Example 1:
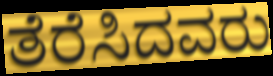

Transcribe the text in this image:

ತೆರೆಸಿದವರು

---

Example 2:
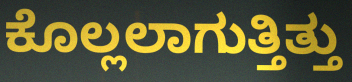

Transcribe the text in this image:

ಕೊಲ್ಲಲಾಗುತ್ತಿತ್ತು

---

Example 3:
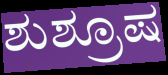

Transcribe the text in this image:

ಶುಶ್ರೂಷ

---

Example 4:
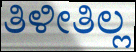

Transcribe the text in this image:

ತಿಳೀತಿಲ್ಲ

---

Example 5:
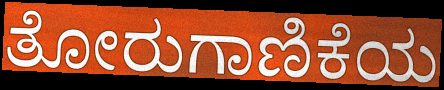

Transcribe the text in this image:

ತೋರುಗಾಣಿಕೆಯ